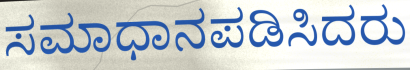
ಸಮಾಧಾನಪಡಿಸಿದರು